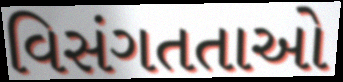
વિસંગતતાઓ